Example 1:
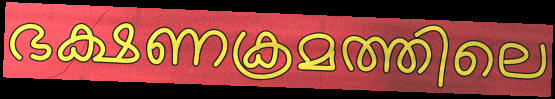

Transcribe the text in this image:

ഭക്ഷണക്രമത്തിലെ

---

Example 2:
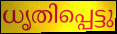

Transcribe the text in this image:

ധൃതിപ്പെട്ടു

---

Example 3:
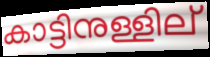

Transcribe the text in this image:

കാട്ടിനുള്ളില്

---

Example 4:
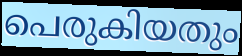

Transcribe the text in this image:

പെരുകിയതും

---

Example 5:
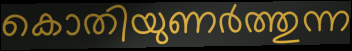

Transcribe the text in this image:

കൊതിയുണർത്തുന്ന